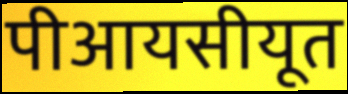
पीआयसीयूत